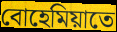
বোহেমিয়াতে